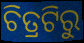
ଚିତ୍ରଟିରୁ